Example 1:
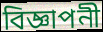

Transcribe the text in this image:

বিজ্ঞাপনী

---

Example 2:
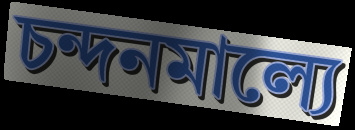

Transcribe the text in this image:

চন্দনমাল্যে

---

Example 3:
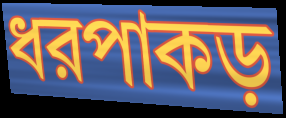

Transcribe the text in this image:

ধরপাকড়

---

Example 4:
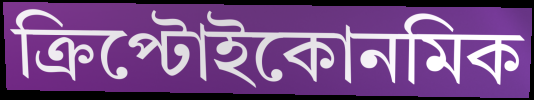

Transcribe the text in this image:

ক্রিপ্টোইকোনমিক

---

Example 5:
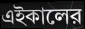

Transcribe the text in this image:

এইকালের